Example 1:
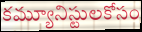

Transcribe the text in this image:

కమ్యూనిస్టులకోసం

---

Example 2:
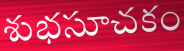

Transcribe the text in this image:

శుభసూచకం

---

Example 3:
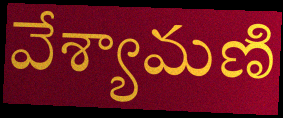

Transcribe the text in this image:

వేశ్యామణి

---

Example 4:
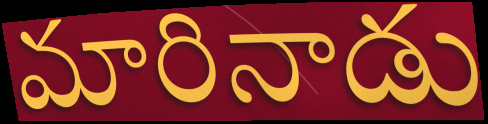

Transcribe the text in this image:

మారినాడు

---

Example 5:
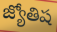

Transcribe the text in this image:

జ్యోతిష